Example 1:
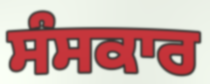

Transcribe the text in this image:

ਸੰਸਕਾਰ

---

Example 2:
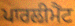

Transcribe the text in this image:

ਪਾਰਲੀਮੈਂਟ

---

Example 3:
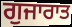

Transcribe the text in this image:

ਗੁਜਾਰਾਤ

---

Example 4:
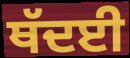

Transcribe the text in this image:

ਥੱਦਈ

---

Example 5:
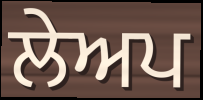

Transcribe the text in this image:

ਲੇਅਪ